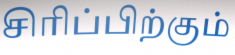
சிரிப்பிற்கும்